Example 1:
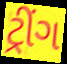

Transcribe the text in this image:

ટ્રીંગ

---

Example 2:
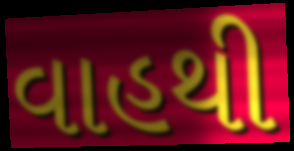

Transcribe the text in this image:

વાહથી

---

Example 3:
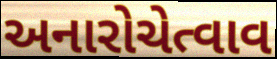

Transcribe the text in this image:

અનારોચેત્વાવ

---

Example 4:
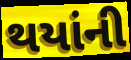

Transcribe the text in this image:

થયાંની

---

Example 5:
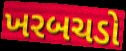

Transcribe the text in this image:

ખરબચડો